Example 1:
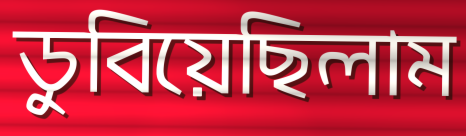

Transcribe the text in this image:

ডুবিয়েছিলাম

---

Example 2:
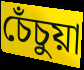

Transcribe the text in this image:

চেঁচুয়া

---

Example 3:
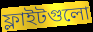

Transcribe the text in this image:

ফ্লাইটগুলো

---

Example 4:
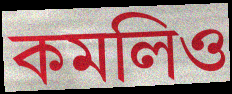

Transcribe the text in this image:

কমলিও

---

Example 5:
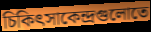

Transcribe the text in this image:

চিকিৎসাকেন্দ্রগুলোতে